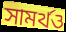
সামর্থও